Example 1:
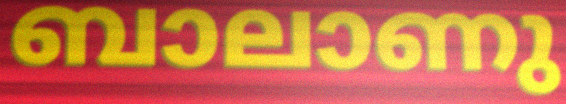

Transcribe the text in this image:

ബാലാണു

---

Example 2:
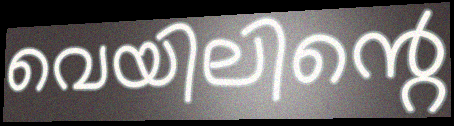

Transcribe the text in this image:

വെയിലിന്റെ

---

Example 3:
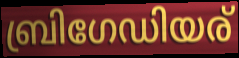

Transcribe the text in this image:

ബ്രിഗേഡിയര്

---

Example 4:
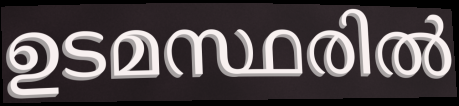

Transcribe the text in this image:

ഉടമസ്ഥരിൽ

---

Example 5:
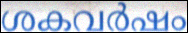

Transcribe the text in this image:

ശകവർഷം